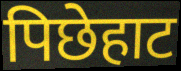
पिछेहाट